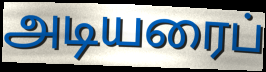
அடியரைப்